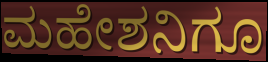
ಮಹೇಶನಿಗೂ